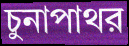
চুনাপাথর